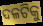
ଦଳଟିକୁ